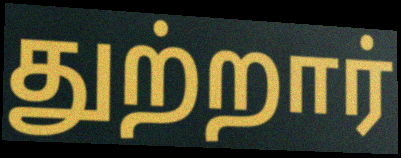
துற்றார்